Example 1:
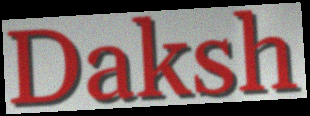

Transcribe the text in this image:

Daksh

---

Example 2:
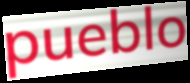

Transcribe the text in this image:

pueblo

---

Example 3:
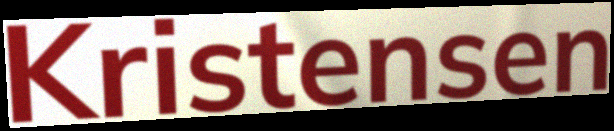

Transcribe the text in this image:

Kristensen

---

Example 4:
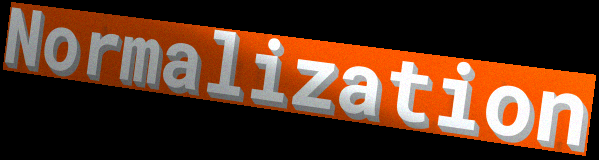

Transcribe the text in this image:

Normalization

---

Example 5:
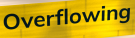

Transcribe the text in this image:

Overflowing